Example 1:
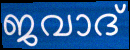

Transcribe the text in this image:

ജവാദ്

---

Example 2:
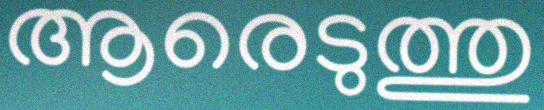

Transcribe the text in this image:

ആരെടുത്തു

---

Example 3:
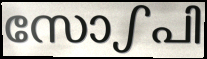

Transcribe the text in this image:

സോഽപി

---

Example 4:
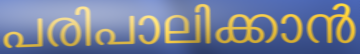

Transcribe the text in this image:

പരിപാലിക്കാൻ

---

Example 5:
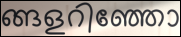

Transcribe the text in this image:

ങ്ങളറിഞ്ഞോ